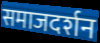
समाजदर्शन